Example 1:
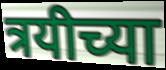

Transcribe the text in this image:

त्रयीच्या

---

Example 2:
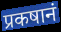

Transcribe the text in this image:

प्रकषानं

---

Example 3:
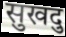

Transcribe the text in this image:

सुखदु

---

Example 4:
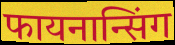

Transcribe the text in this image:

फायनान्सिंग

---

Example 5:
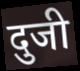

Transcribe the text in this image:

दुजी